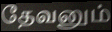
தேவனும்